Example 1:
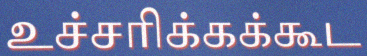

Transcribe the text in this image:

உச்சரிக்கக்கூட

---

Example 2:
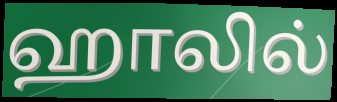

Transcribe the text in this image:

ஹாலில்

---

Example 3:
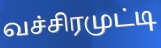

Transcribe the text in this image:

வச்சிரமுட்டி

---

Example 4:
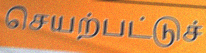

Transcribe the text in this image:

செயற்பட்டுச்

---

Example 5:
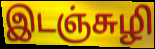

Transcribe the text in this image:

இடஞ்சுழி